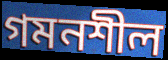
গমনশীল